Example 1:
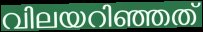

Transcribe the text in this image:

വിലയറിഞ്ഞത്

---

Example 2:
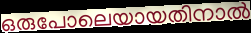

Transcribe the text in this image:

ഒരുപോലെയായതിനാൽ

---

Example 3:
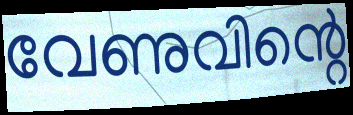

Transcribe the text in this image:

വേണുവിന്റെ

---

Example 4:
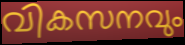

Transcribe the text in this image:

വികസനവും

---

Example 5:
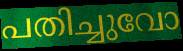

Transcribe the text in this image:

പതിച്ചുവോ